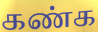
கண்க